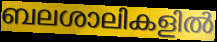
ബലശാലികളിൽ